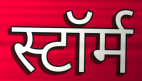
स्टॉर्म